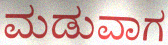
ಮಡುವಾಗ